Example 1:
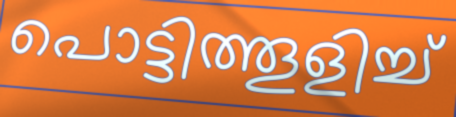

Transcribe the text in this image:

പൊട്ടിത്തൂളിച്ച്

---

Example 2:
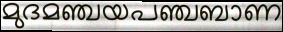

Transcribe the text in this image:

മുദമഞ്ചയപഞ്ചബാണ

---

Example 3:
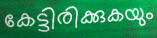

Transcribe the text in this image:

കേട്ടിരിക്കുകയും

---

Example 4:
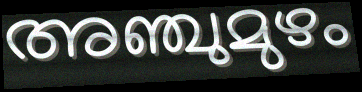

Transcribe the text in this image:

അഞ്ചുമുഴം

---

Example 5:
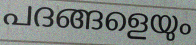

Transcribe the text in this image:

പദങ്ങളെയും